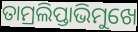
ତାମ୍ରଲିପ୍ତାଭିମୁଖେ